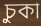
চুকা